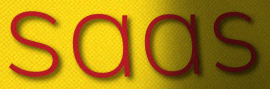
saas